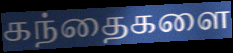
கந்தைகளை